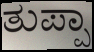
ತುಪ್ಪಾ